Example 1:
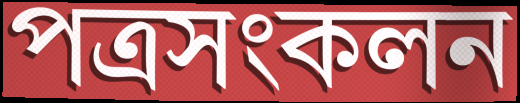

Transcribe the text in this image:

পত্রসংকলন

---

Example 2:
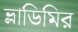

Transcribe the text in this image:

ভ্লাডিমির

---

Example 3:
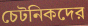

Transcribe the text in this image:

চেটনিকদের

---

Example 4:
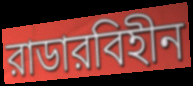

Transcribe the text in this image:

রাডারবিহীন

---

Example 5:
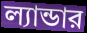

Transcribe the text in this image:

ল্যান্ডার